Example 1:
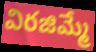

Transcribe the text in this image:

విరజిమ్మే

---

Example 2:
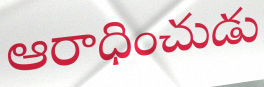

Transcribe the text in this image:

ఆరాధించుడు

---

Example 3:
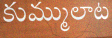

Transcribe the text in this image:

కుమ్ములాట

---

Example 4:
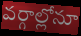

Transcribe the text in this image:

వర్గాల్లోనూ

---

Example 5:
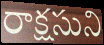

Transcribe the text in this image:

రాక్షసుని